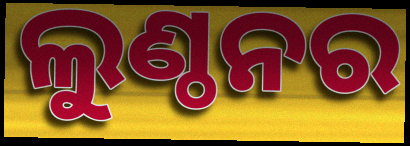
ଲୁଣ୍ଠନର